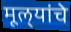
मूल्यांचे